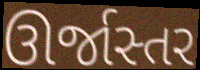
ઊર્જાસ્તર